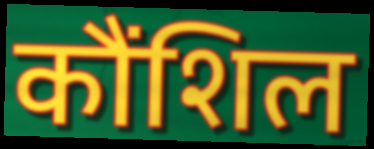
कौंशिल